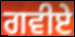
ਗਵੀਏ